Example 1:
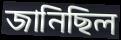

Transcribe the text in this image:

জানিছিল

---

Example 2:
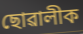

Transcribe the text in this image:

ছোৱালীক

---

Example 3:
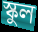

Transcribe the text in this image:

স্কুল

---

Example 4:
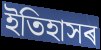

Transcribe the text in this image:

ইতিহাসৰ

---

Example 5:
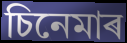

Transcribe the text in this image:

চিনেমাৰ